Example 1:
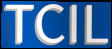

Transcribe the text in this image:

TCIL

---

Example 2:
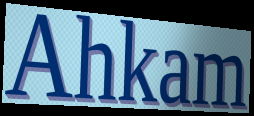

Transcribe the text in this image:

Ahkam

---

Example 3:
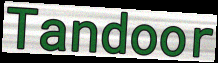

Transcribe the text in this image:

Tandoor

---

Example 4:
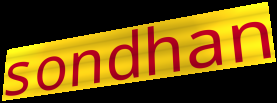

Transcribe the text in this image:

sondhan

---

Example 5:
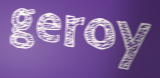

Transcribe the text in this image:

geroy